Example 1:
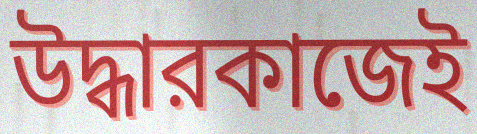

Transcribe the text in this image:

উদ্ধারকাজেই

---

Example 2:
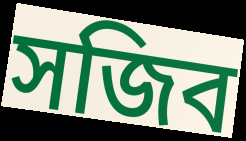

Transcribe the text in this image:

সজিব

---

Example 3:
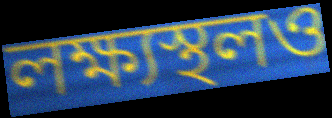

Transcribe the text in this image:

লক্ষ্যস্থলও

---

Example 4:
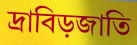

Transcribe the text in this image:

দ্রাবিড়জাতি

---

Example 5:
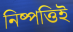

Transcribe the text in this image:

নিষ্পত্তিই